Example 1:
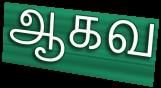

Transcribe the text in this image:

ஆகவ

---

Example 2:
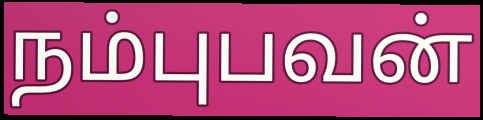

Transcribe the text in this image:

நம்புபவன்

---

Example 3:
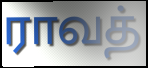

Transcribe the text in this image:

ராவத்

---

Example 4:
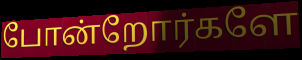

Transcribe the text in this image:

போன்றோர்களே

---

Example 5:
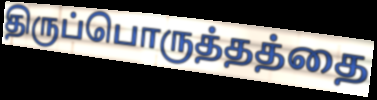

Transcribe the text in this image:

திருப்பொருத்தத்தை